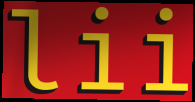
lii